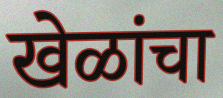
खेळांचा